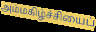
அம்மகிழ்ச்சியைப்